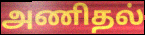
அணிதல்